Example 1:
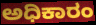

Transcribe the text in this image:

ಅಧಿಕಾರಂ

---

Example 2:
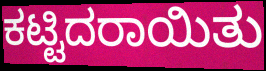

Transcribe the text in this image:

ಕಟ್ಟಿದರಾಯಿತು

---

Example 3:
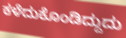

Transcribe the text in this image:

ಕಳೆದುಕೊಂಡಿದ್ದುದು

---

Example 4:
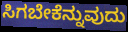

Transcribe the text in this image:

ಸಿಗಬೇಕೆನ್ನುವುದು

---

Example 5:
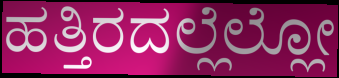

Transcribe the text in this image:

ಹತ್ತಿರದಲ್ಲೆಲ್ಲೋ